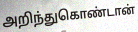
அறிந்துகொண்டான்